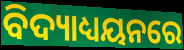
ବିଦ୍ୟାଧ୍ୟୟନରେ